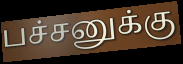
பச்சனுக்கு